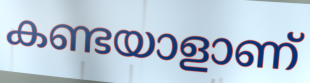
കണ്ടയാളാണ്